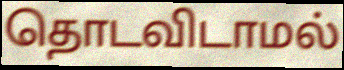
தொடவிடாமல்